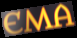
EMA